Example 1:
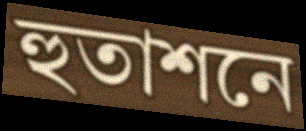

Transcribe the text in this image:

হুতাশনে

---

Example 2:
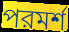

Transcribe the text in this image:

পরমর্শ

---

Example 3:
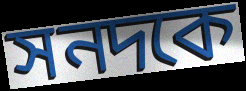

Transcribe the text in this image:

সনদকে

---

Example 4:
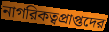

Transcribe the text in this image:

নাগরিকত্বপ্রাপ্তদের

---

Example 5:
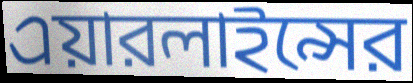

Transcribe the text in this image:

এয়ারলাইন্সের